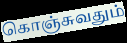
கொஞ்சுவதும்